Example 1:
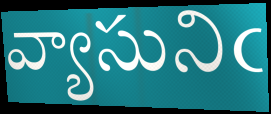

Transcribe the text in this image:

వ్యాసునిఁ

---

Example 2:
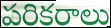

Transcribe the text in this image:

పరికరాలు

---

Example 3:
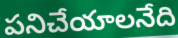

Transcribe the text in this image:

పనిచేయాలనేది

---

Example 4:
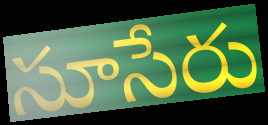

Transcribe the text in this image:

సూసేరు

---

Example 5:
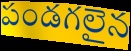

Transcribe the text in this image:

పండగలైన